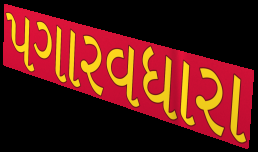
પગારવધારા